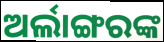
ଅର୍ଲାଙ୍ଗରଙ୍କ